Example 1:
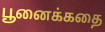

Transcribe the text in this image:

பூனைக்கதை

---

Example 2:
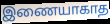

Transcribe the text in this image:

இணையாகாத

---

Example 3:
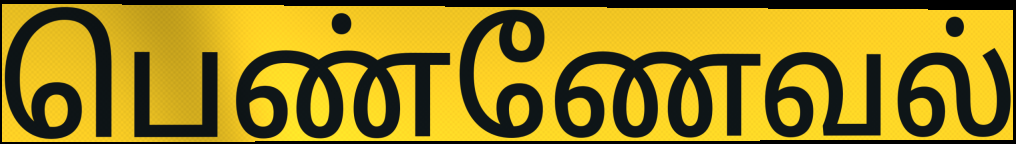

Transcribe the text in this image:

பெண்ணேவல்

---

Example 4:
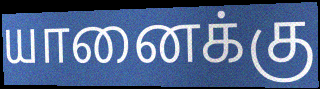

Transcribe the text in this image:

யானைக்கு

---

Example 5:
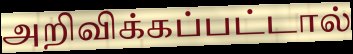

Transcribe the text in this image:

அறிவிக்கப்பட்டால்